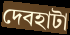
দেবহাটা